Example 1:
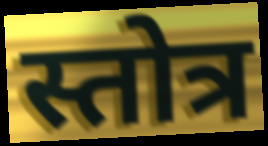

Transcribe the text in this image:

स्तोत्र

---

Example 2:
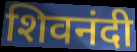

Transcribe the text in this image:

शिवनंदी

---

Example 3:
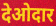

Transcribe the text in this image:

देओदार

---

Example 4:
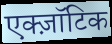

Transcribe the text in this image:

एक्ज़ॉटिक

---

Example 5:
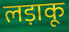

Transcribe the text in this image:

लड़ाकू